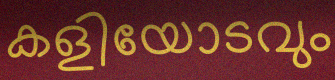
കളിയോടവും